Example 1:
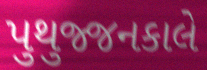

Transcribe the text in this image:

પુથુજ્જનકાલે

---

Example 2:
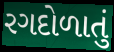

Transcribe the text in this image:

રગદોળાતું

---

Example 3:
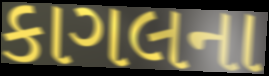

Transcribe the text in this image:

કાગલના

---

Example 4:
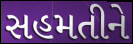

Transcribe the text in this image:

સહમતીને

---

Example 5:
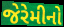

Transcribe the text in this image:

જેરેમીનો